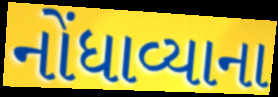
નોંધાવ્યાના